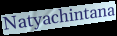
Natyachintana